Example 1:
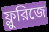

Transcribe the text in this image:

ফ্লুরিজে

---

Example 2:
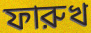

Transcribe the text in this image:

ফারুখ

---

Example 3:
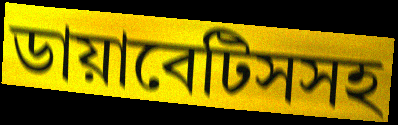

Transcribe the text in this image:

ডায়াবেটিসসহ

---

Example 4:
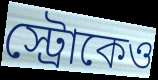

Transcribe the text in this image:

স্ট্রোকেও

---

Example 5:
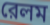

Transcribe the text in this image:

রেলম